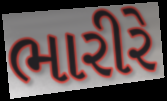
ભારીરે